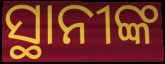
ସ୍ଥାନୀଙ୍କ